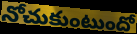
నోచుకుంటుందో